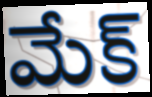
మేక్